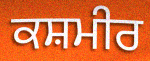
ਕਸ਼ਮੀਰ